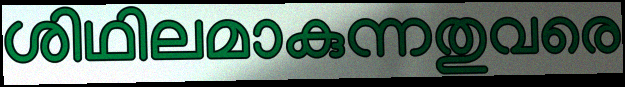
ശിഥിലമാകുന്നതുവരെ